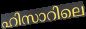
ഹിസാറിലെ